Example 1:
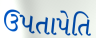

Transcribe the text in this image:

ઉપતાપેતિ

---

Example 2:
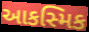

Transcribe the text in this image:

આકસ્મિક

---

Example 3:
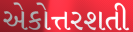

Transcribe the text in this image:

એકોત્તરશતી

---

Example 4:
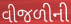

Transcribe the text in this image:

વીજળીની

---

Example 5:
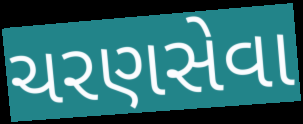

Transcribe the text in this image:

ચરણસેવા